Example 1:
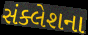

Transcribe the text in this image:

સંક્લેશના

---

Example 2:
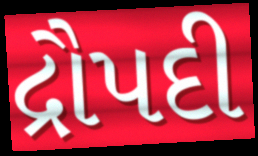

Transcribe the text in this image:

દ્રૌપદી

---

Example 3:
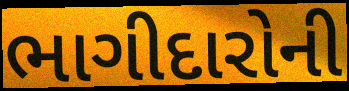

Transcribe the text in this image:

ભાગીદારોની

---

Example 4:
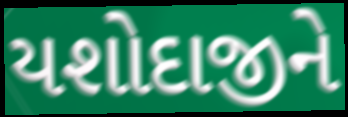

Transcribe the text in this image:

યશોદાજીને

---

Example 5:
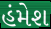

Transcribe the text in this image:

હંમેશ